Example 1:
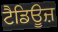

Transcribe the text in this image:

ਟੈਡਿਊਜ਼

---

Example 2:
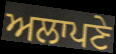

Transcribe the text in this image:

ਅਲਾਪਣੇ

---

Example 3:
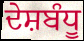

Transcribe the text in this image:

ਦੇਸ਼ਬੰਧੂ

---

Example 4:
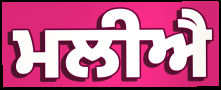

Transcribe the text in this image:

ਮਲੀਐ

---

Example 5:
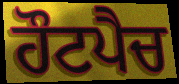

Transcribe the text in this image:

ਹੌਟਪੈਚ